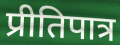
प्रीतिपात्र